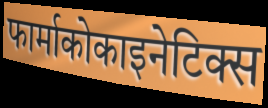
फार्माकोकाइनेटिक्स